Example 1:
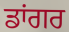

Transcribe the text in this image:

ਡਾਂਗਰ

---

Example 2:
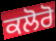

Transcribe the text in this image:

ਕਲੋਰੋ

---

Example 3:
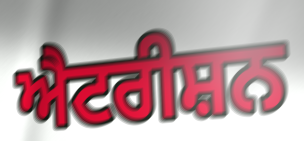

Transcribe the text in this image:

ਐਟਰੀਸ਼ਨ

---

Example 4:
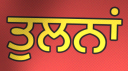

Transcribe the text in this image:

ਤੁਲਨਾਂ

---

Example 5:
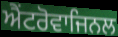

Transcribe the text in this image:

ਐਂਟਰੋਵਾਜਿਨਲ